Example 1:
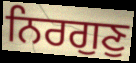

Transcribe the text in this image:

ਨਿਰਗੁਣੁ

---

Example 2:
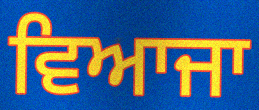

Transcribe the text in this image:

ਵਿਆਜਾ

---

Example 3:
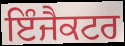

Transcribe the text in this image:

ਇੰਜੈਕਟਰ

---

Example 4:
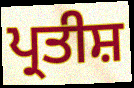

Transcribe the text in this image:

ਪ੍ਰਤੀਸ਼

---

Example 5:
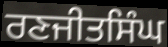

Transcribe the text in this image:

ਰਣਜੀਤਸਿੰਘ